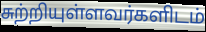
சுற்றியுள்ளவர்களிடம்